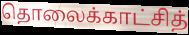
தொலைக்காட்சித்